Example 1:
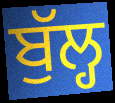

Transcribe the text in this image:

ਬੁੱਲ੍ਹ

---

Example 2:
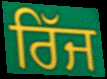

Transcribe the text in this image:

ਰਿੱਜ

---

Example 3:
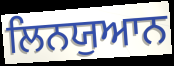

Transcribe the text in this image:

ਲਿਨਯੁਆਨ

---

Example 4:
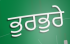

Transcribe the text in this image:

ਭੁਰਭੁਰੇ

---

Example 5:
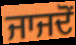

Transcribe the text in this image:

ਜਾਜਦੋਂ